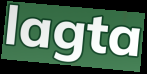
lagta